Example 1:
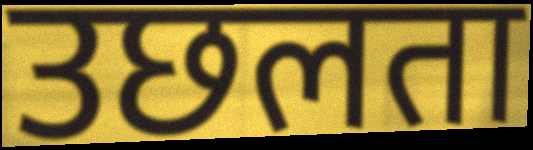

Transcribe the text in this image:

उछलता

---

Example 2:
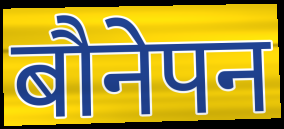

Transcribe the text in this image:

बौनेपन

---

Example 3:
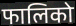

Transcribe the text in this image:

फालिको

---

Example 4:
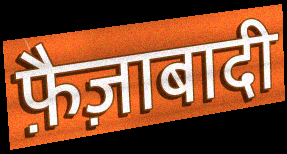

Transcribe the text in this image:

फ़ैज़ाबादी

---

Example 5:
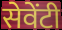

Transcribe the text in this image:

सेवेंटी